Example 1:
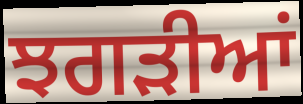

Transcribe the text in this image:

ਝਗੜੀਆਂ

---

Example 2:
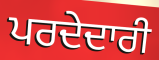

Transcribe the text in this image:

ਪਰਦੇਦਾਰੀ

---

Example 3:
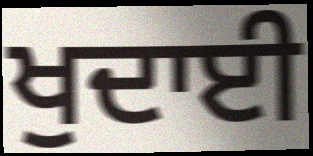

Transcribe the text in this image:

ਖੁਦਾਈ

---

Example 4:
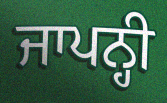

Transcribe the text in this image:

ਜਾਪਨ੍ਹੀ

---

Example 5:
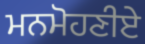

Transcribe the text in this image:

ਮਨਮੋਹਣੀਏ